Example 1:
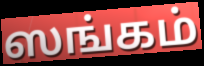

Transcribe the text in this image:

ஸங்கம்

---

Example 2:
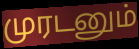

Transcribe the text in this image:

முரடனும்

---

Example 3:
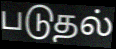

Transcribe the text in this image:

படுதல்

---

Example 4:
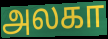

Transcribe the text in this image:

அலகா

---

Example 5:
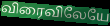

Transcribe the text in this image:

விரைவிலேயே